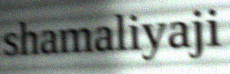
shamaliyaji